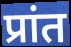
प्रांत